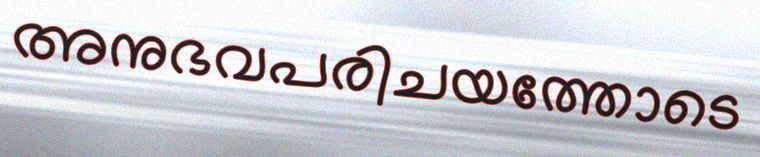
അനുഭവപരിചയത്തോടെ